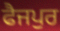
ਫੈਜਪੁਰ